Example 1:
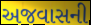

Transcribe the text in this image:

અજવાસની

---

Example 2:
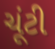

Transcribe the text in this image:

ચૂંટી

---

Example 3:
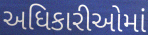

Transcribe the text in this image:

અધિકારીઓમાં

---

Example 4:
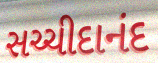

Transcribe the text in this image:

સચ્ચીદાનંદ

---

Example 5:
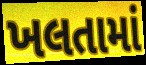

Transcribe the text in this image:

ખલતામાં